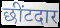
छींटदार